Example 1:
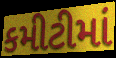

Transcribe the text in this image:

કમીટીમાં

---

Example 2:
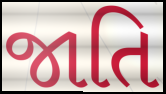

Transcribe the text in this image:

જાતિ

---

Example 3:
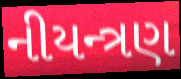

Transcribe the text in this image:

નીયન્ત્રણ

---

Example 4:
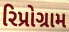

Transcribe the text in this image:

રિપ્રોગ્રામ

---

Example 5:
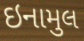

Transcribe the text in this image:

ઇનામુલ